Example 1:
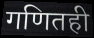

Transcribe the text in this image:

गणितही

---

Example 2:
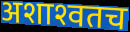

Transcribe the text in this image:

अशाश्वतच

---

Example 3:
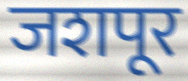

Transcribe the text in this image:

जशपूर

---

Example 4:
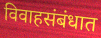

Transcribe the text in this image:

विवाहसंबंधात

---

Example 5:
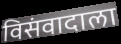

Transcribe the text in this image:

विसंवादाला